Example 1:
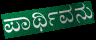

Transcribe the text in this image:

ಪಾರ್ಥಿವನು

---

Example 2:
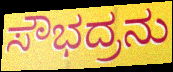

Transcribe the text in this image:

ಸೌಭದ್ರನು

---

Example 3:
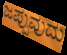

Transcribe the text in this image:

ಜಪ್ಪುವುದು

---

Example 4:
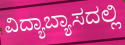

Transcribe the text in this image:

ವಿದ್ಯಾಬ್ಯಾಸದಲ್ಲಿ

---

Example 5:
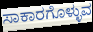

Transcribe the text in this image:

ಸಾಕಾರಗೊಳ್ಳುವ